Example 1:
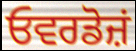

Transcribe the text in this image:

ਓਵਰਡੋਜ਼ਂ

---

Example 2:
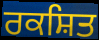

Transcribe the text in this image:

ਰਕਸ਼ਿਤ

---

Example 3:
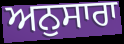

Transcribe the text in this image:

ਅਨੁਸਾਰਾ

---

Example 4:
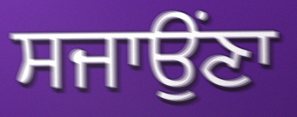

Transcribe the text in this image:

ਸਜਾਉਂਣਾ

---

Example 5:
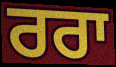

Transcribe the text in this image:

ਰਰਾ